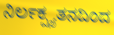
ನಿರ್ಲಕ್ಷ್ಯತನದಿಂದ